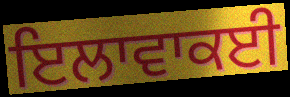
ਇਲਾਵਾਕਈ